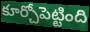
కూర్చోపెట్టింది